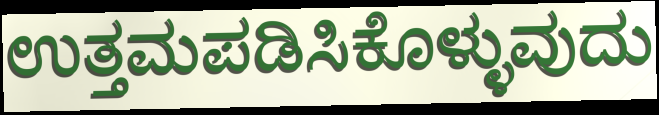
ಉತ್ತಮಪಡಿಸಿಕೊಳ್ಳುವುದು